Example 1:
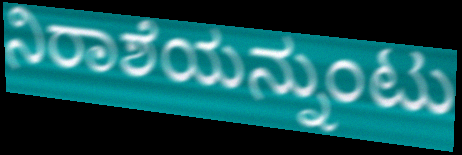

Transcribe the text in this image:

ನಿರಾಶೆಯನ್ನುಂಟು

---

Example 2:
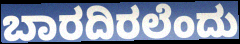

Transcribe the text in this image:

ಬಾರದಿರಲೆಂದು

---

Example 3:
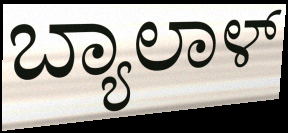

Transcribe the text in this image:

ಬ್ಯಾಲಾಳ್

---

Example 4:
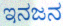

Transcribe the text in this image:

ಇನಜನ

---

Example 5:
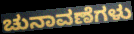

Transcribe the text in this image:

ಚುನಾವಣೆಗಳು